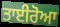
ਤਾਈਰੋਆ